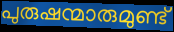
പുരുഷന്മാരുമുണ്ട്